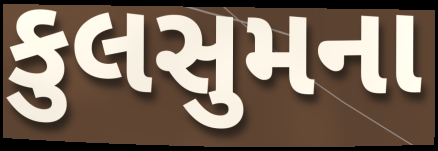
કુલસુમના